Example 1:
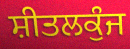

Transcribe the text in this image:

ਸ਼ੀਤਲਕੁੰਜ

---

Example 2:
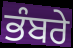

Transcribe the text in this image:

ਭੰਬਰੇ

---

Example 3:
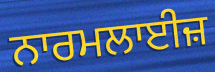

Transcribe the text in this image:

ਨਾਰਮਲਾਈਜ਼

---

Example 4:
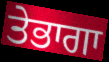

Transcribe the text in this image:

ਤੇਭਾਗਾ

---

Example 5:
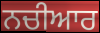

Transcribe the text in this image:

ਨਚੀਆਰ